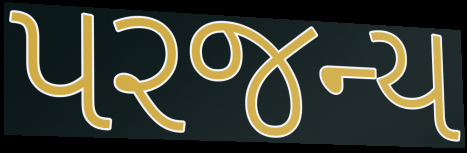
પરજન્ય